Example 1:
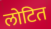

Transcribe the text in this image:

लोटित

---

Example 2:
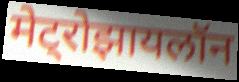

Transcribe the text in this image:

मेट्रोझायलॉन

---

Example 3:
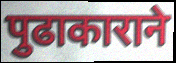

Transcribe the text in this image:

पुढाकाराने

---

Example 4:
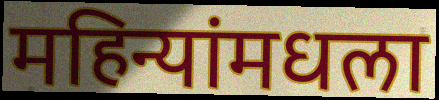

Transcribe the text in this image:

महिन्यांमधला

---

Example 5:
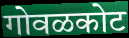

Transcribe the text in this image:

गोवळकोट